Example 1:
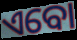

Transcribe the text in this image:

ଏବୋ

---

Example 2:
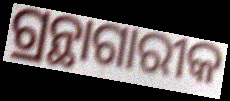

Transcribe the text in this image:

ଗ୍ରନ୍ଥାଗାରୀକ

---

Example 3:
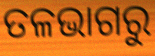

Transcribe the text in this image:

ତଳଭାଗରୁ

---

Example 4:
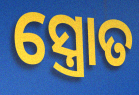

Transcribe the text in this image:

ସ୍ତ୍ରୋତ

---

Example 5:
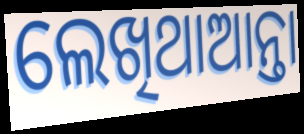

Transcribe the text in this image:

ଲେଖିଥାଆନ୍ତା